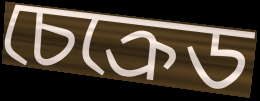
চেক্ৰেড